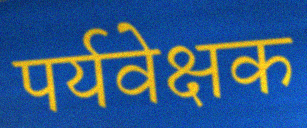
पर्यवेक्षक